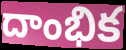
దాంభిక